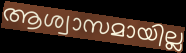
ആശ്വാസമായില്ല